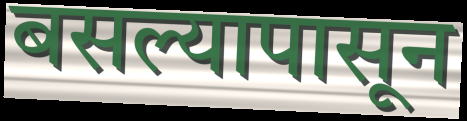
बसल्यापासून